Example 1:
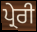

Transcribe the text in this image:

ਪ੍ਰੇਰੀ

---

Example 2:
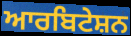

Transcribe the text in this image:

ਆਰਬਿਟੇਸ਼ਨ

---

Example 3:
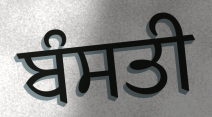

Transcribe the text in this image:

ਬੰਸਤੀ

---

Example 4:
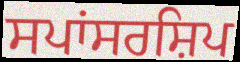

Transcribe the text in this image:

ਸਪਾਂਸਰਸ਼ਿਪ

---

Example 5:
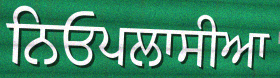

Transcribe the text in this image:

ਨਿਓਪਲਾਸੀਆ